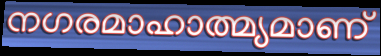
നഗരമാഹാത്മ്യമാണ്